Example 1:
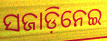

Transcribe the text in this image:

ସଜାଡ଼ିନେଇ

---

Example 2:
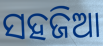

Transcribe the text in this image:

ସହଜିଆ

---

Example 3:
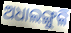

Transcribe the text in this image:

ଅଧାଲଙ୍ଗୁଳି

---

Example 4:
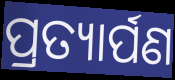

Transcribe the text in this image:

ପ୍ରତ୍ୟାର୍ପଣ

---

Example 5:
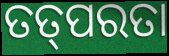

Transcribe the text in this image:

ତତ୍‌ପରତା